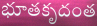
భూతకృదంత